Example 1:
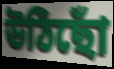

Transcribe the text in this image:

উঠিছোঁ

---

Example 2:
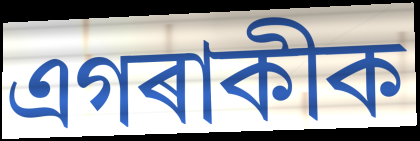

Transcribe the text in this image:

এগৰাকীক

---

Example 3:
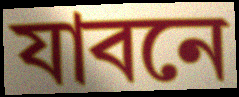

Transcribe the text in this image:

যাবনে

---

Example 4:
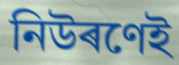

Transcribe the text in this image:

নিউৰণেই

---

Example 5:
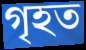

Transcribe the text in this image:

গৃহত